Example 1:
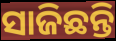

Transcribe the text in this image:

ସାଜିଛନ୍ତି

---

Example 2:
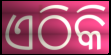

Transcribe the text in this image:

ଏଠିକି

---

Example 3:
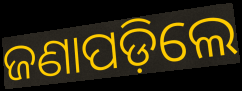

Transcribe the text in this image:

ଜଣାପଡ଼ିଲେ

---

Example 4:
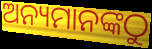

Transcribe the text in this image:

ଅନ୍ୟମାନଙ୍କଠୁ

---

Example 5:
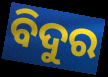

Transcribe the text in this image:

ବିଦୁର